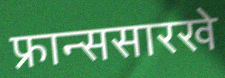
फ्रान्ससारखे